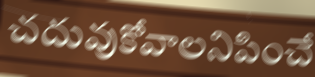
చదువుకోవాలనిపించే